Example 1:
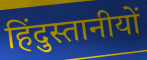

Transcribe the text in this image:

हिंदुस्तानीयों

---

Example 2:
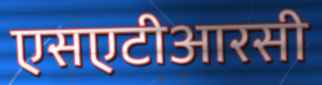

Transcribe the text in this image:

एसएटीआरसी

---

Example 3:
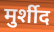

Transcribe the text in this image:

मुर्शीद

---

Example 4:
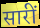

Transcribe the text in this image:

सारीं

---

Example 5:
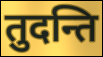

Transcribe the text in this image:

तुदन्ति